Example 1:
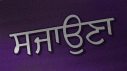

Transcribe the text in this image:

ਸਜਾਉਣਾ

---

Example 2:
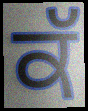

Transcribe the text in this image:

ਕੱ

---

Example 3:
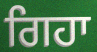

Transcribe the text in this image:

ਗਿਹਾ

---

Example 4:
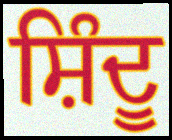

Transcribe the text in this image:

ਸ਼ਿੰਦੂ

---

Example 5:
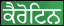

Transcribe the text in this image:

ਕੈਰੋਟਿਨ